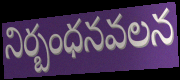
నిర్బంధనవలన